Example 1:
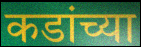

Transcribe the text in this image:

कडांच्या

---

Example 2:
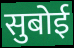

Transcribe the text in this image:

सुबोई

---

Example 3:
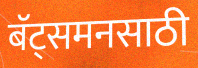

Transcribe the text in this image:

बॅट्समनसाठी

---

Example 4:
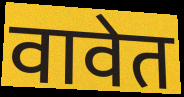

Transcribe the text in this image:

वावेत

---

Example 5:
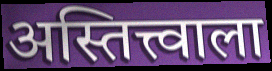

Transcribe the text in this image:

अस्तित्त्वाला